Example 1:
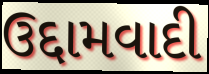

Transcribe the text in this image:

ઉદ્દામવાદી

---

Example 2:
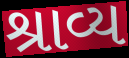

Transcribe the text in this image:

શ્રાવ્ય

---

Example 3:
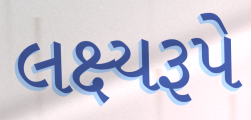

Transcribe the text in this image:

લક્ષ્યરૂપે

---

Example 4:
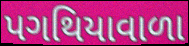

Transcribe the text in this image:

પગથિયાવાળા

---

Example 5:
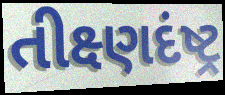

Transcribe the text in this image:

તીક્ષ્ણદંષ્ટ્ર